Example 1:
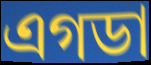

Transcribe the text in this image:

এগডা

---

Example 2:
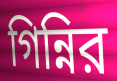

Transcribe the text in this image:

গিন্নির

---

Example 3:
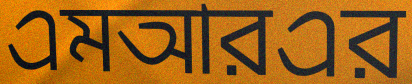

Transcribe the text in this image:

এমআরএর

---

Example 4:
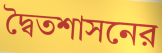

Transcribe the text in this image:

দ্বৈতশাসনের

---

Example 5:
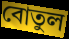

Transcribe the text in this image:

বোতুল